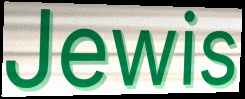
Jewis